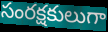
సంరక్షకులుగా